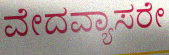
ವೇದವ್ಯಾಸರೇ